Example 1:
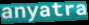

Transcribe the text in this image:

anyatra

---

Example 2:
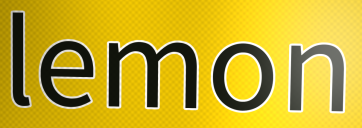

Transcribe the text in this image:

lemon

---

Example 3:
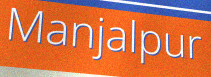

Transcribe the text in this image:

Manjalpur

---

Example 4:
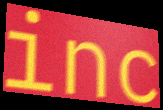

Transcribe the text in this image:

inc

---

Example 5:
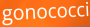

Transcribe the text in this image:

gonococci